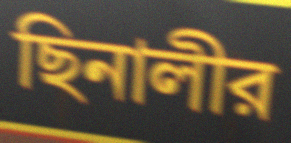
ছিনালীর